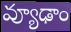
వ్యూఢాం